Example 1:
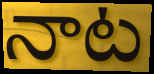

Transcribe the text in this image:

నాట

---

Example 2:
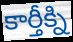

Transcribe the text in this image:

కార్తీక్ని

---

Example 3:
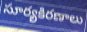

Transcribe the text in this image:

సూర్యకిరణాలు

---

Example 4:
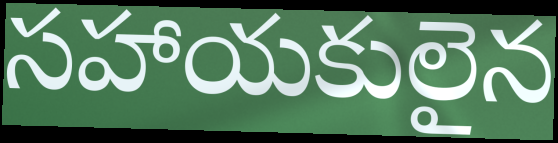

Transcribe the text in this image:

సహాయకులైన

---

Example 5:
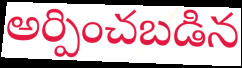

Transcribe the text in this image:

అర్పించబడిన